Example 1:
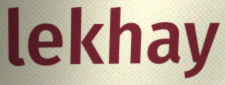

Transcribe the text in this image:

lekhay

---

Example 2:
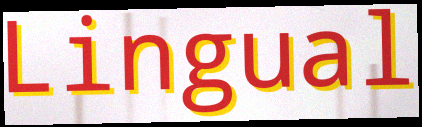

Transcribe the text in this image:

Lingual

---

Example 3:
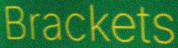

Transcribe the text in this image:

Brackets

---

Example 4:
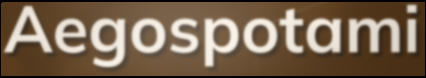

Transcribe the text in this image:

Aegospotami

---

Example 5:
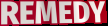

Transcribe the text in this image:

REMEDY